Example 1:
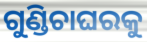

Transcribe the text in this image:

ଗୁଣ୍ଡିଚାଘରକୁ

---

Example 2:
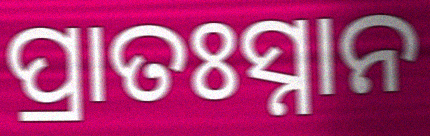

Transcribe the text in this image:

ପ୍ରାତଃସ୍ନାନ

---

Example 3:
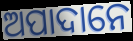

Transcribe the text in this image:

ଅପାଦାନେ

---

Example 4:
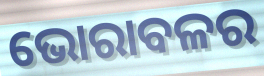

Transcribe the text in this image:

ଭୋରାବଳର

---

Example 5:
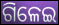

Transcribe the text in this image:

ଗିଳେଇ